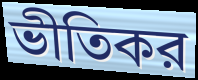
ভীতিকর